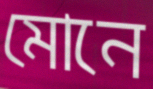
মোনে